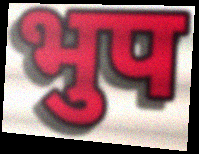
भुप